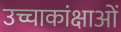
उच्चाकांक्षाओं